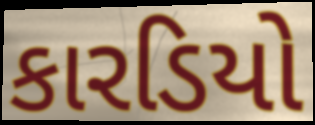
કારડિયો